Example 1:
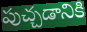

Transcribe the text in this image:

పుచ్చడానికి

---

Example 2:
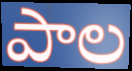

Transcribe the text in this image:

పాల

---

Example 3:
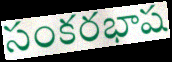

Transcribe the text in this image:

సంకరభాష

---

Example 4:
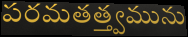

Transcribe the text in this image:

పరమతత్త్వమును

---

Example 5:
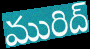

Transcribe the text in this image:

మురిద్